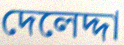
দেলেদ্দা